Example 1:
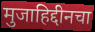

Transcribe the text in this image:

मुजाहिद्दीनचा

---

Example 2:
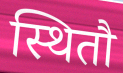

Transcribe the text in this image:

स्थितौ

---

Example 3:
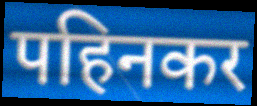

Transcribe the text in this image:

पहिनकर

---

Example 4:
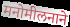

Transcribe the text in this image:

मनोमीलनाने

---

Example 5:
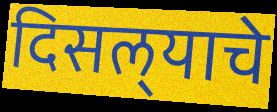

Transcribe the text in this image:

दिसल्याचे